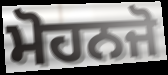
ਮੋਹਨਜੋ